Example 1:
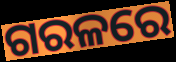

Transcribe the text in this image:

ଗରଳରେ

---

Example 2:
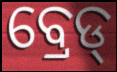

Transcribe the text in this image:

ବ୍ରେଡ୍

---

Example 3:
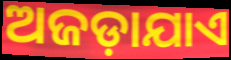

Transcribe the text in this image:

ଅଜଡ଼ାଯାଏ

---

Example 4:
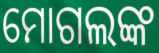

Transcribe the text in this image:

ମୋଗଲଙ୍କ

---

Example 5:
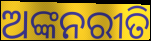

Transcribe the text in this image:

ଅଙ୍କନରୀତି